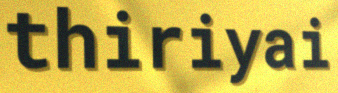
thiriyai